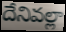
దేనివల్లా